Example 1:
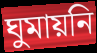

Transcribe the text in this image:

ঘুমায়নি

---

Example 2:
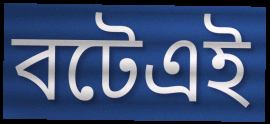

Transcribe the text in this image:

বটেএই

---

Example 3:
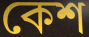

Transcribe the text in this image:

কেশ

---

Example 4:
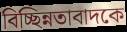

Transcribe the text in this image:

বিচ্ছিন্নতাবাদকে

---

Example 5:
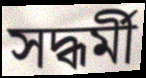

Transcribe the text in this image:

সদ্ধর্মী